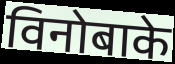
विनोबाके